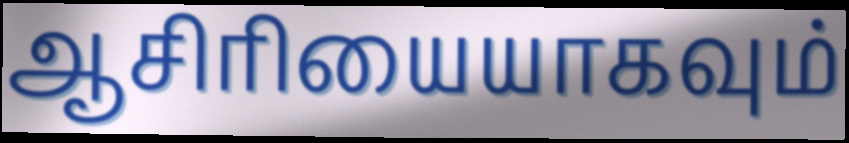
ஆசிரியையாகவும்